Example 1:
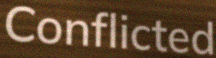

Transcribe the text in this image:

Conflicted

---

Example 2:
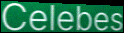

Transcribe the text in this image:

Celebes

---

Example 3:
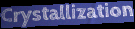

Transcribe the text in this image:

Crystallization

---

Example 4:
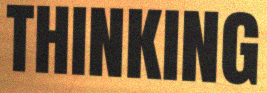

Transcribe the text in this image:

THINKING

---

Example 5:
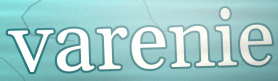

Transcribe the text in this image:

varenie